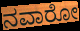
ನವಾರೋ